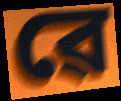
ৱে